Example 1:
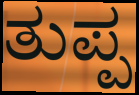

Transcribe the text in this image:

ತುಪ್ಪ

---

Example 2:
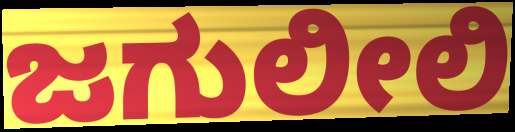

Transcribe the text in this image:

ಜಗುಲೀಲಿ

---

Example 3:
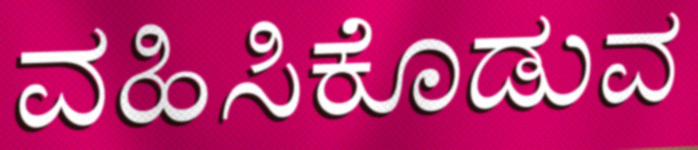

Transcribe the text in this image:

ವಹಿಸಿಕೊಡುವ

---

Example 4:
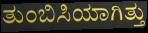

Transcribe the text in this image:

ತುಂಬಿಸಿಯಾಗಿತ್ತು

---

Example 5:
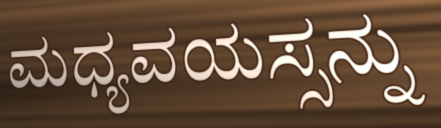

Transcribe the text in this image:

ಮಧ್ಯವಯಸ್ಸನ್ನು